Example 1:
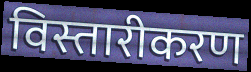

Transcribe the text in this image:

विस्तारीकरण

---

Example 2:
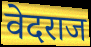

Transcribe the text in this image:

वेदराज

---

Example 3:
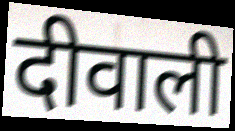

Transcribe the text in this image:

दीवाली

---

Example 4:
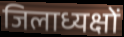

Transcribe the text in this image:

जिलाध्यक्षों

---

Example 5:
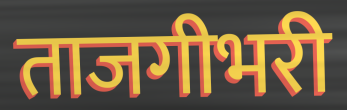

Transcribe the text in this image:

ताजगीभरी